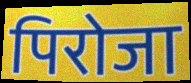
पिरोजा